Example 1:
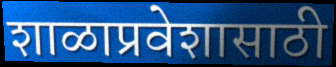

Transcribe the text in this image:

शाळाप्रवेशासाठी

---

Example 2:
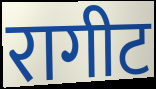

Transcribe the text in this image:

रागीट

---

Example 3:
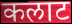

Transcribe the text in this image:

कलाट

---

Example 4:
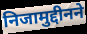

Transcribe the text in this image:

निजामुद्दीनने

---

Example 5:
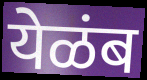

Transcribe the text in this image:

येळंब